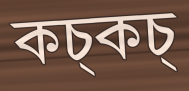
কচ্কচ্